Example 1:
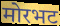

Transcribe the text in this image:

मोरभट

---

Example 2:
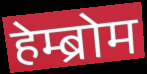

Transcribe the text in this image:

हेम्ब्रोम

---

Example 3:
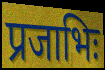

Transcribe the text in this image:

प्रजाभिः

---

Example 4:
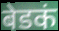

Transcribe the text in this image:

बेडकं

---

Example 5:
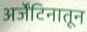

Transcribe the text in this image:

अर्जेंटिनातून